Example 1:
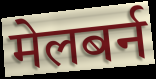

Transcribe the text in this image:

मेलबर्न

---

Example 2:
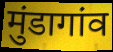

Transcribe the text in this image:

मुंडागांव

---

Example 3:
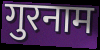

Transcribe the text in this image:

गुरनाम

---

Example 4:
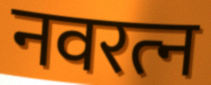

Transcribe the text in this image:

नवरत्‍न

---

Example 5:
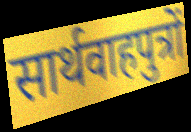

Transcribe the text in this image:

सार्थवाहपुत्रों